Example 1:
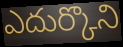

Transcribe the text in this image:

ఎదుర్కొని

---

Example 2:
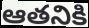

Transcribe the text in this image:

ఆతనికి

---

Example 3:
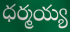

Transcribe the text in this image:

ధర్మయ్య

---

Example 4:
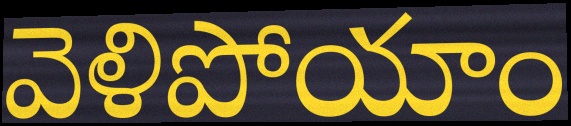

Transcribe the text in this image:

వెళిపోయాం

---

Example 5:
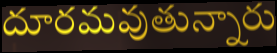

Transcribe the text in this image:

దూరమవుతున్నారు